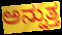
ಅನ್ನುತ್ತ